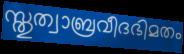
സ്തുത്വാബ്രവീദഭിമതം